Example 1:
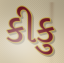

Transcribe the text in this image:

કીકુ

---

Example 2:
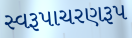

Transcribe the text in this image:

સ્વરૂપાચરણરૂપ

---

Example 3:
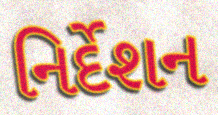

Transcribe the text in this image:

નિર્દેશન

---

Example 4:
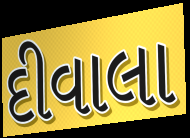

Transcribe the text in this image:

દીવાલા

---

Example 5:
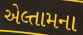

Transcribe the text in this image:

એલ્તામના